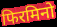
फिरमिनो